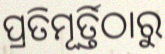
ପ୍ରତିମୂର୍ତ୍ତିଠାରୁ